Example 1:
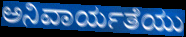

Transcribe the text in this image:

ಅನಿವಾರ್ಯತೆಯು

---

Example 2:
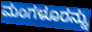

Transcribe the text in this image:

ಮಂಗಳೂರನ್ನು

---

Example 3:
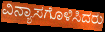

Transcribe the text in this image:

ವಿನ್ಯಾಸಗೊಳಿಸಿದರು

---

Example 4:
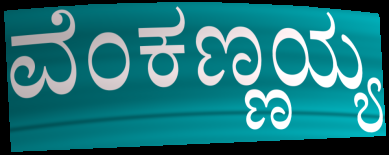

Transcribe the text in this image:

ವೆಂಕಣ್ಣಯ್ಯ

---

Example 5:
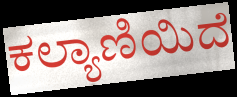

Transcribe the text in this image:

ಕಲ್ಯಾಣಿಯಿದೆ